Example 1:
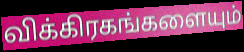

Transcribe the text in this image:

விக்கிரகங்களையும்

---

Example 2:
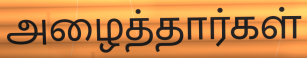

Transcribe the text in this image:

அழைத்தார்கள்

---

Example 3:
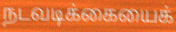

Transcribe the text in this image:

நடவடிக்கையைக்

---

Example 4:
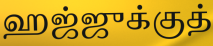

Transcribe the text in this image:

ஹஜ்ஜுக்குத்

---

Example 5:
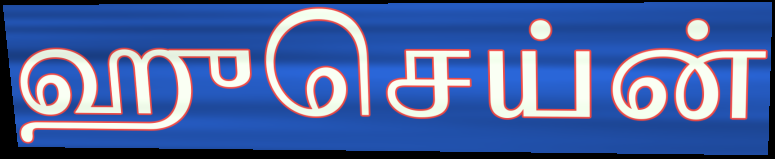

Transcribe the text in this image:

ஹுசெய்ன்